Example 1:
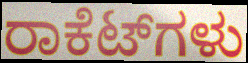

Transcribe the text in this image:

ರಾಕೆಟ್‌ಗಳು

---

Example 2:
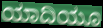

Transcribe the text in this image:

ಯಾದಿಯೂ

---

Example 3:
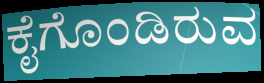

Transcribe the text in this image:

ಕೈಗೊಂಡಿರುವ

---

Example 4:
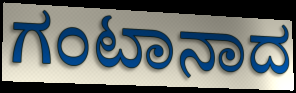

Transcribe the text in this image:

ಗಂಟಾನಾದ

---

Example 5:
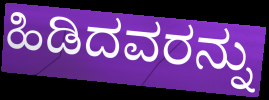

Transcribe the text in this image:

ಹಿಡಿದವರನ್ನು